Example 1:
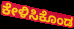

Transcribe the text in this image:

ಕೇಳಿಸಿಕೊಂಡ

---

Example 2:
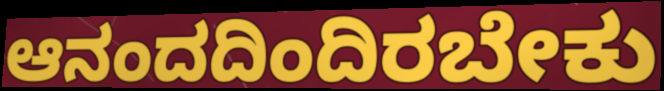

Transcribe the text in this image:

ಆನಂದದಿಂದಿರಬೇಕು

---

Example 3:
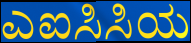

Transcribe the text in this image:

ಎಐಸಿಸಿಯ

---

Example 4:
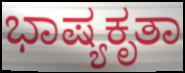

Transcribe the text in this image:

ಭಾಷ್ಯಕೃತಾ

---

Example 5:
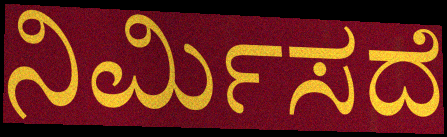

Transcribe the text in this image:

ನಿರ್ಮಿಸದೆ